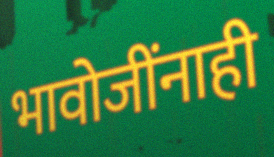
भावोजींनाही